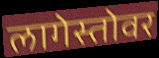
लागेस्तोवर